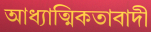
আধ্যাত্মিকতাবাদী